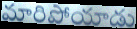
మారిపోయాడు